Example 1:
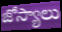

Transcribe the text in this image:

జోస్యాలు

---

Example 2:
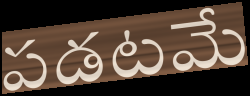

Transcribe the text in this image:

పడటమే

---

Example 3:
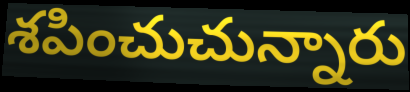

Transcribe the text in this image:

శపించుచున్నారు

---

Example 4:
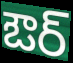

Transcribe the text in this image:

ఔర్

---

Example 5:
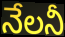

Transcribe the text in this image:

నేలనీ